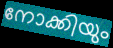
നോക്കിയും